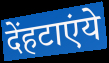
देंहटाएंये